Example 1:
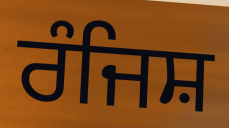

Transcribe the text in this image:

ਰੰਜਿਸ਼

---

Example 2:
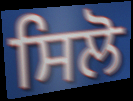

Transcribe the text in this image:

ਸਿਲੋ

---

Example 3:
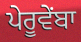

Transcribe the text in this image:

ਪੇਰੂਵੇਂਬਾ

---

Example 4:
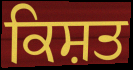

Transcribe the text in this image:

ਕਿਸ਼ਤ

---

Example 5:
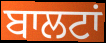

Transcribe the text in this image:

ਬਾਲਟਾਂ